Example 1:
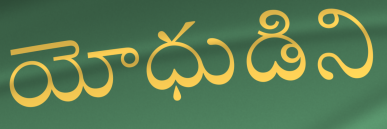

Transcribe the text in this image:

యోధుడిని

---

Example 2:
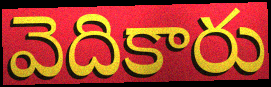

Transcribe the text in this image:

వెదికారు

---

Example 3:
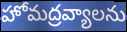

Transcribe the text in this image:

హోమద్రవ్యాలను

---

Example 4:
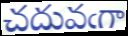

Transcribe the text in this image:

చదువఁగా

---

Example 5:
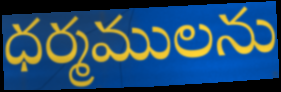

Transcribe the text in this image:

ధర్మములను